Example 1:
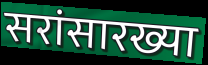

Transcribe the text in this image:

सरांसारख्या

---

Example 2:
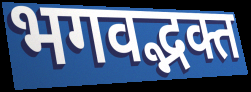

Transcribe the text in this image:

भगवद्भक्त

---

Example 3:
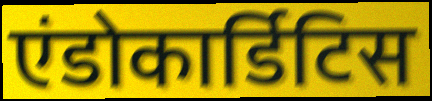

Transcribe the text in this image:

एंडोकार्डिटिस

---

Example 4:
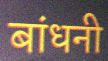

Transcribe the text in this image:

बांधनी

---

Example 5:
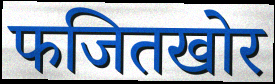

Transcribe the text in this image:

फजितखोर